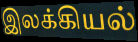
இலக்கியல்